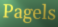
Pagels